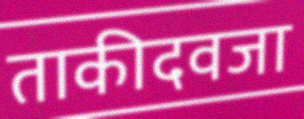
ताकीदवजा